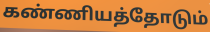
கண்ணியத்தோடும்